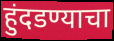
हुंदडण्याचा